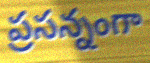
ప్రసన్నంగా